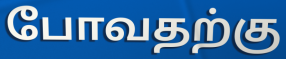
போவதற்கு